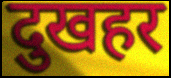
दुखहर